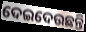
ଦେଇଦେଉଛନ୍ତି